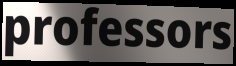
professors